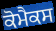
ਕੋਮੈਕਸ